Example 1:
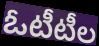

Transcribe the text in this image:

ఓటీటీల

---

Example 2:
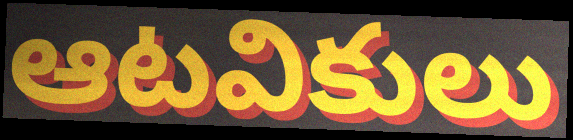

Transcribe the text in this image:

ఆటవికులు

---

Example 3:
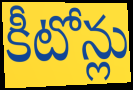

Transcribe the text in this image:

కీటోన్లు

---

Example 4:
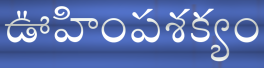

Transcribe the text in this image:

ఊహింపశక్యం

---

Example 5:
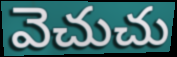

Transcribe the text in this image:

వెచుచు